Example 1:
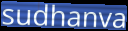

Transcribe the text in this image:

sudhanva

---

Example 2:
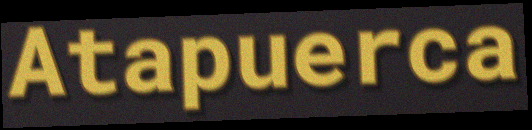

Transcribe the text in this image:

Atapuerca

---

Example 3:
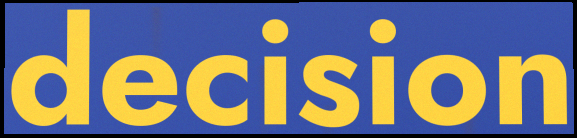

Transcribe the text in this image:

decision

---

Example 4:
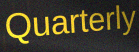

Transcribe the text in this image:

Quarterly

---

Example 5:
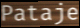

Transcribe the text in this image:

Pataje